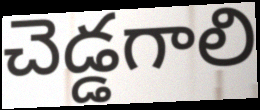
చెడ్డగాలి